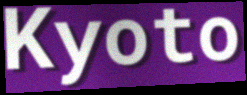
Kyoto